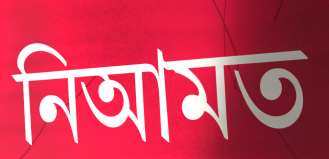
নিআমত